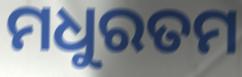
ମଧୁରତମ